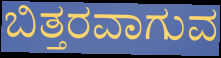
ಬಿತ್ತರವಾಗುವ